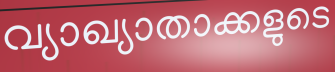
വ്യാഖ്യാതാക്കളുടെ